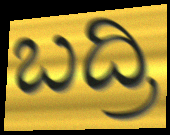
ಬದ್ರಿ